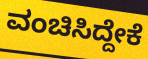
ವಂಚಿಸಿದ್ದೇಕೆ